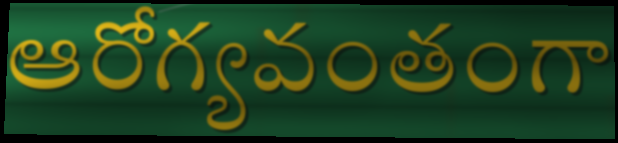
ఆరోగ్యవంతంగా